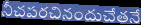
నీచపరచినందుచేతనే